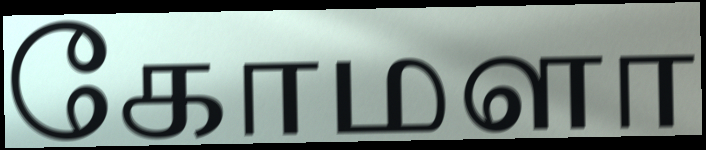
கோமளா